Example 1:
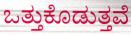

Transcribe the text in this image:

ಒತ್ತುಕೊಡುತ್ತವೆ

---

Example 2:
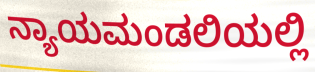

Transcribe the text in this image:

ನ್ಯಾಯಮಂಡಲಿಯಲ್ಲಿ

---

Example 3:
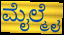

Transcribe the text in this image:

ಮೈಲ್ಮೈ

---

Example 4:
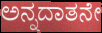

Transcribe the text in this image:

ಅನ್ನದಾತನೇ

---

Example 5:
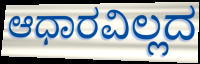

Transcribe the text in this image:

ಆಧಾರವಿಲ್ಲದ